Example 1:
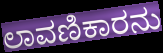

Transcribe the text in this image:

ಲಾವಣಿಕಾರನು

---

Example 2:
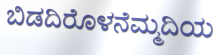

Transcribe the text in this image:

ಬಿಡದಿರೊಳನೆಮ್ಮದಿಯ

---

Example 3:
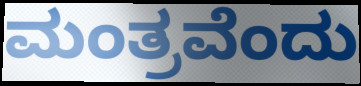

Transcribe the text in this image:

ಮಂತ್ರವೆಂದು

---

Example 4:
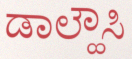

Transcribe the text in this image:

ಡಾಲ್ಹೌಸಿ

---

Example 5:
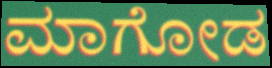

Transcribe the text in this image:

ಮಾಗೋಡ